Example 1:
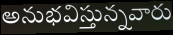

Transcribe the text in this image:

అనుభవిస్తున్నవారు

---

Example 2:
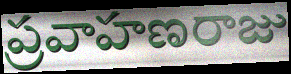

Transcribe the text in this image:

ప్రవాహణరాజు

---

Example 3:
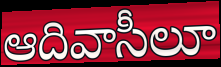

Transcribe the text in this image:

ఆదివాసీలూ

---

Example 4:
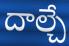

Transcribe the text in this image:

దాల్చే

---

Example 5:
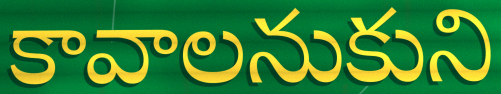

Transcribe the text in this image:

కావాలనుకుని